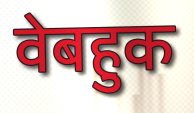
वेबहुक